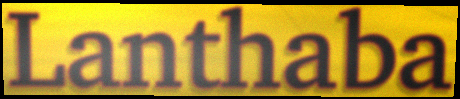
Lanthaba